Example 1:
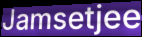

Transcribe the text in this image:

Jamsetjee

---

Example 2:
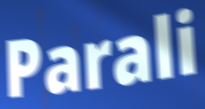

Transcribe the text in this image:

Parali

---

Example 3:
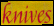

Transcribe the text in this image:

knives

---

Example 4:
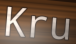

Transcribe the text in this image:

Kru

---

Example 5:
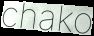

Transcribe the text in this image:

chako